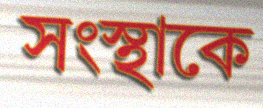
সংস্থাকে